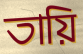
তায়ি